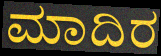
ಮಾದಿರ